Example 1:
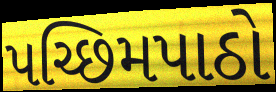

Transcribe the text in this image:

પચ્છિમપાઠો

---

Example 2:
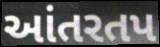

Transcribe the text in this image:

આંતરતપ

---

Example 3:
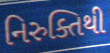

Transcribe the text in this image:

નિરુક્તિથી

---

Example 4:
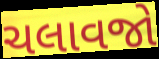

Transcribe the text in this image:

ચલાવજો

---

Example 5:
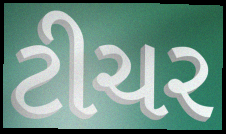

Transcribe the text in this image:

ટીચર